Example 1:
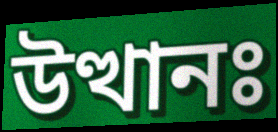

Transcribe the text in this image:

উত্থানঃ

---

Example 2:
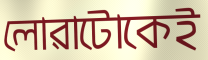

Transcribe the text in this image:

লোৱাটোকেই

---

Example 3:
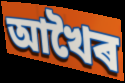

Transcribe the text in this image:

আখৈৰ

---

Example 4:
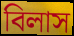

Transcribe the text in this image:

বিলাস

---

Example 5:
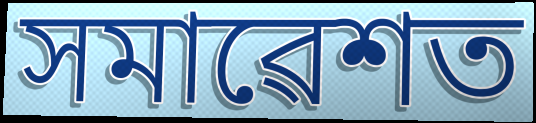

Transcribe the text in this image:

সমাৱেশত